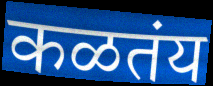
कळतंय